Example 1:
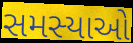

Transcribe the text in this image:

સમસ્યાઓ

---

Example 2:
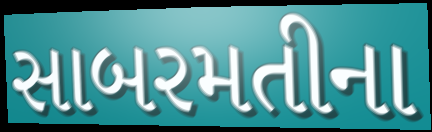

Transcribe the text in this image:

સાબરમતીના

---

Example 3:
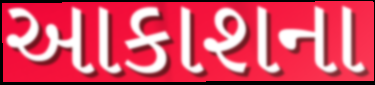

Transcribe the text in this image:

આકાશના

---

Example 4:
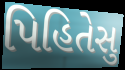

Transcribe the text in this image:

પિહિતેસુ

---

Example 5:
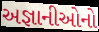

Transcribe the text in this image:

અજ્ઞાનીઓનો